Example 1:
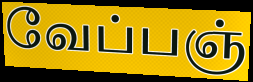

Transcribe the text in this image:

வேப்பஞ்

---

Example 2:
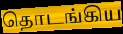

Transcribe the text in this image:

தொடங்கிய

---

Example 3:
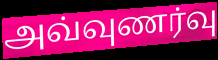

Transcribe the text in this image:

அவ்வுணர்வு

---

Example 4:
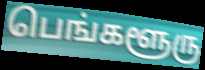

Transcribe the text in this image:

பெங்களூரு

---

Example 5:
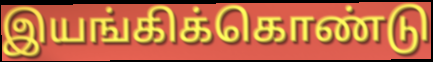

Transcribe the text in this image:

இயங்கிக்கொண்டு